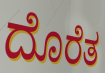
ದೊರೆತ